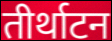
तीर्थाटन